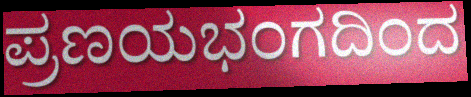
ಪ್ರಣಯಭಂಗದಿಂದ